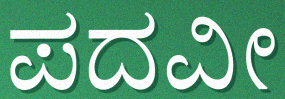
ಪದವೀ